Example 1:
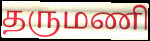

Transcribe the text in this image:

தருமணி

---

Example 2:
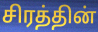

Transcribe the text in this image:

சிரத்தின்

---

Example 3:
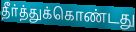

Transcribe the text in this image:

தீர்த்துக்கொண்டது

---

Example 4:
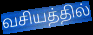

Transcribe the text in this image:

வசியத்தில்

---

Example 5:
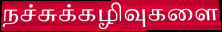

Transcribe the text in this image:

நச்சுக்கழிவுகளை